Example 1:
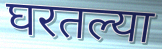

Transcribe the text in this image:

घरतल्या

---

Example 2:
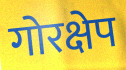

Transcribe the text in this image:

गोरक्षेप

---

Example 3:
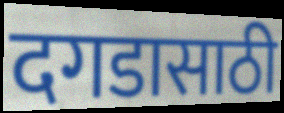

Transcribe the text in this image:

दगडासाठी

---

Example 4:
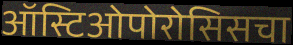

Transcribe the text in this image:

ऑस्टिओपोरोसिसचा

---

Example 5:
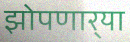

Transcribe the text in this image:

झोपणार्‍या